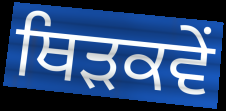
ਥਿੜਕਵੇਂ